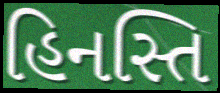
હિનસ્તિ